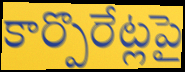
కార్పొరేట్లపై